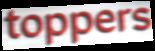
toppers